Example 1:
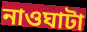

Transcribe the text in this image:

নাওঘাটা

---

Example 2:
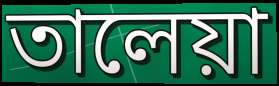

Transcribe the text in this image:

তালেয়া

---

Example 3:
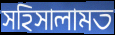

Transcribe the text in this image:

সহিসালামত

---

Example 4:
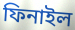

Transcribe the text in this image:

ফিনাইল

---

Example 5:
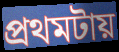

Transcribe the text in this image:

প্রথমটায়